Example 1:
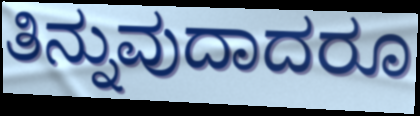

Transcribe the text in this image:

ತಿನ್ನುವುದಾದರೂ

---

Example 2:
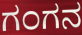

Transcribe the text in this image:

ಗಂಗನ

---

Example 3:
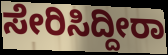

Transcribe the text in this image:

ಸೇರಿಸಿದ್ದೀರಾ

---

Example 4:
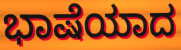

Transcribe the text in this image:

ಭಾಷೆಯಾದ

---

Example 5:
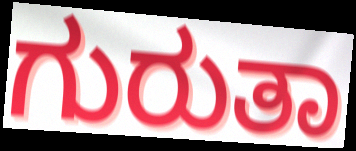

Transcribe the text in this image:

ಗುರುತಾ